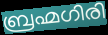
ബ്രഹ്മഗിരി